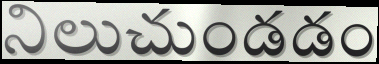
నిలుచుండడం